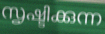
സൃഷ്ടിക്കുന്ന